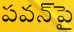
పవన్‌పై